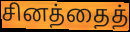
சினத்தைத்